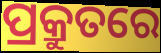
ପ୍ରକ୍ରୁତରେ